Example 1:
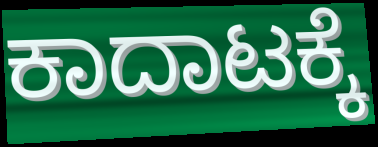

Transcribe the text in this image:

ಕಾದಾಟಕ್ಕೆ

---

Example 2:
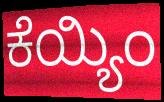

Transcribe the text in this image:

ಕೆಯ್ಯಿಂ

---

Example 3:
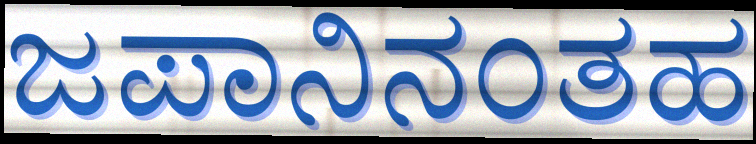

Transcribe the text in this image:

ಜಪಾನಿನಂತಹ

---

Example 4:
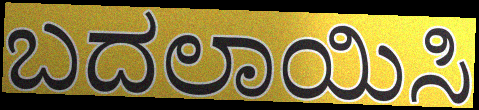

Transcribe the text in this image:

ಬದಲಾಯಿಸಿ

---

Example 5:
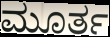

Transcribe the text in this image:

ಮೂರ್ತ